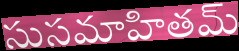
సుసమాహితమ్